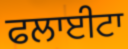
ਫਲਾਈਟਾ